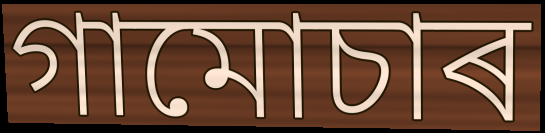
গামোচাৰ